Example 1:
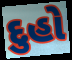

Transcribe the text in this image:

દુહો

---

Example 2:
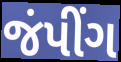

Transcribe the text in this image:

જંપીંગ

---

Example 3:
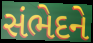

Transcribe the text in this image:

સંભેદને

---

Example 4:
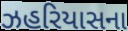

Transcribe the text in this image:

ઝહરિયાસના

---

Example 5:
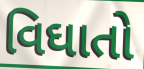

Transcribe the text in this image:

વિઘાતો